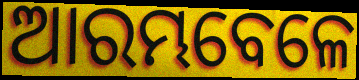
ଆରମ୍ଭବେଳେ